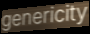
genericity